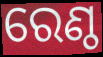
ରେଣ୍ଠ